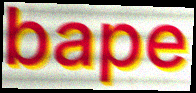
bape